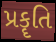
પ્રકૄતિ